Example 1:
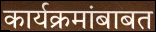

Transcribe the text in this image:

कार्यक्रमांबाबत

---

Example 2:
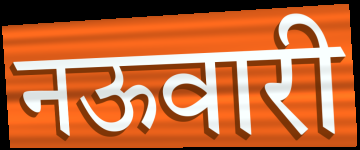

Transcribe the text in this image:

नऊवारी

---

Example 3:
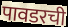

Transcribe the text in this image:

पावडरची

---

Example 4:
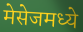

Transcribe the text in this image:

मेसेजमध्ये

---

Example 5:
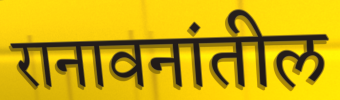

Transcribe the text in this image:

रानावनांतील